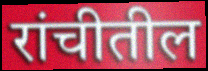
रांचीतील